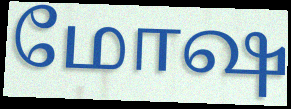
மோஷ